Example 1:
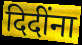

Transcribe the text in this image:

दिदींना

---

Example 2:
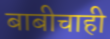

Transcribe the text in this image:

बाबीचाही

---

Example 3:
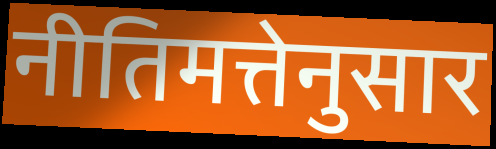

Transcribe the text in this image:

नीतिमत्तेनुसार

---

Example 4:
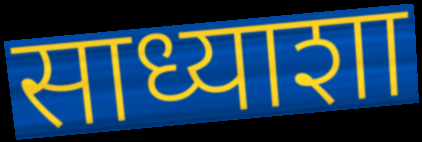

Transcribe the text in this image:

साध्याशा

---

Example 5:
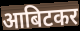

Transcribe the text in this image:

आबिटकर